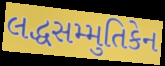
લદ્ધસમ્મુતિકેન